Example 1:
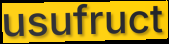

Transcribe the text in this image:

usufruct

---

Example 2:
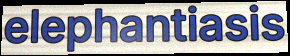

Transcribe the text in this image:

elephantiasis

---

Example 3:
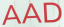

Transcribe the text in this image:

AAD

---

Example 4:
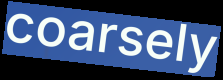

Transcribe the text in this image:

coarsely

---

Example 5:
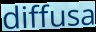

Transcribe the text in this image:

diffusa